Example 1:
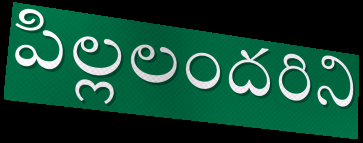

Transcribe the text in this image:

పిల్లలందరిని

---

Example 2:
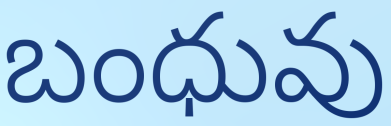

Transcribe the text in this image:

బంధువు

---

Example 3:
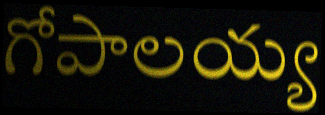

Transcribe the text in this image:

గోపాలయ్య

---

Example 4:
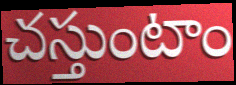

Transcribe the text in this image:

చస్తుంటాం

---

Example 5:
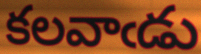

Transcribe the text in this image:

కలవాఁడు